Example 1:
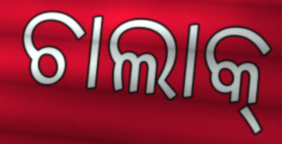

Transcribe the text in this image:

ଚାଲାକ୍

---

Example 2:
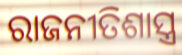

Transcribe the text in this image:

ରାଜନୀତିଶାସ୍ତ୍ର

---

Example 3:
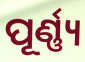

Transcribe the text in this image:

ପୂର୍ଣ୍ଣ୍ୟ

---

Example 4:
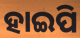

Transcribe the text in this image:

ହାଇପି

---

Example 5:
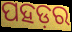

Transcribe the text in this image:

ପହଡ଼ର